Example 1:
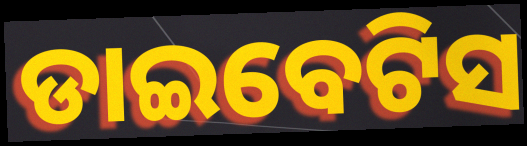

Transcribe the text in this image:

ଡାଇବେଟିସ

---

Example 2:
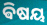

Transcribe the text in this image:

ଵିଷୟ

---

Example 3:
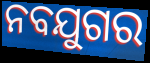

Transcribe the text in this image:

ନବଯୁଗର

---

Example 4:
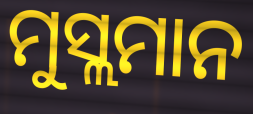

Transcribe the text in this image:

ମୁସ୍ଲମାନ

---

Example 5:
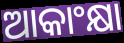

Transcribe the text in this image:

ଆକାଂକ୍ଷା